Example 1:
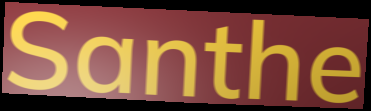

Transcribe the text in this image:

Santhe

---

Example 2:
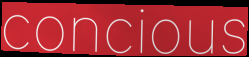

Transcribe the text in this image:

concious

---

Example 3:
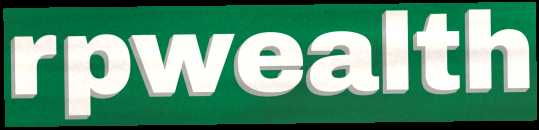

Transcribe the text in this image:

rpwealth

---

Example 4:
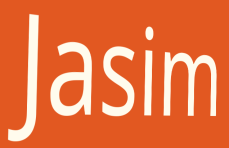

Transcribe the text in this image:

Jasim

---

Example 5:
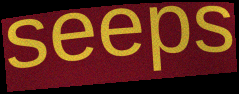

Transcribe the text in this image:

seeps